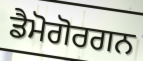
ਡੈਮੋਗੋਰਗਨ